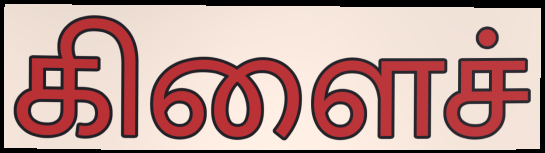
கிளைச்